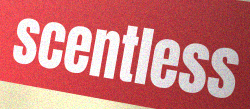
scentless